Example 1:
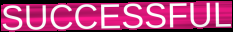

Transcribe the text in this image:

SUCCESSFUL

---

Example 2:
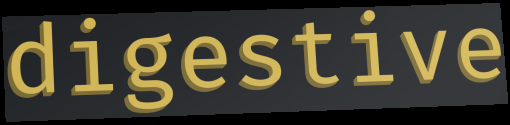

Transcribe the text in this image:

digestive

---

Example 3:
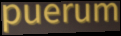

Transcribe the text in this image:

puerum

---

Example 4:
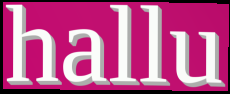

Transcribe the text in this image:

hallu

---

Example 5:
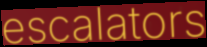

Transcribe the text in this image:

escalators